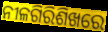
ନୀଳଗିରିଶିଖରେ